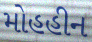
મોહહીન